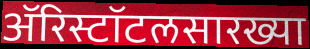
ॲरिस्टॉटलसारख्या